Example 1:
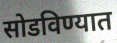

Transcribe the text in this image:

सोडविण्यात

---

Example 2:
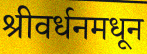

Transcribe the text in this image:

श्रीवर्धनमधून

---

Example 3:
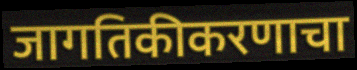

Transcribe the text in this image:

जागतिकीकरणाचा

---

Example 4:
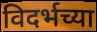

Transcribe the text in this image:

विदर्भच्या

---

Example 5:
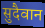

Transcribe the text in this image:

सुदैवान